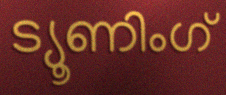
ട്യൂണിംഗ്